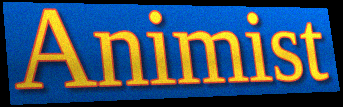
Animist